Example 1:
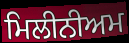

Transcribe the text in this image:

ਮਿਲੀਨੀਅਮ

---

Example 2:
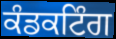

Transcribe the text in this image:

ਕੰਡਕਟਿੰਗ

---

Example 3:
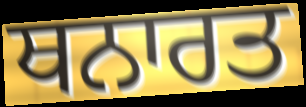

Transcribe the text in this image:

ਥਨਾਰਤ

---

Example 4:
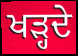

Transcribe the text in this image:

ਖੜ੍ਹਦੇ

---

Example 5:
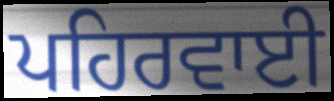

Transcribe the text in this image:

ਪਹਿਰਵਾਈ